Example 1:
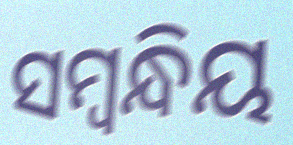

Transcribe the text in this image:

ସମ୍ଵନ୍ଧିୟ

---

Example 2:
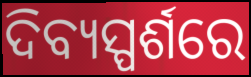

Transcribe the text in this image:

ଦିବ୍ୟସ୍ପର୍ଶରେ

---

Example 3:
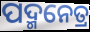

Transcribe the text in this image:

ପଦ୍ମନେତ୍ର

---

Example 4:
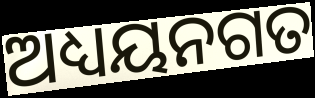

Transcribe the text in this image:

ଅଧ୍ୟୟନଗତ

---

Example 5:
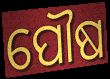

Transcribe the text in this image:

ପୌଷ